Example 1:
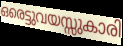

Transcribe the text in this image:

ഒരെട്ടുവയസ്സുകാരി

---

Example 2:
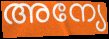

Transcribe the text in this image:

അന്യേ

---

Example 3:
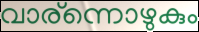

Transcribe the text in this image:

വാര്ന്നൊഴുകും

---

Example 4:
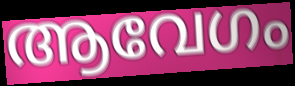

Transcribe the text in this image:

ആവേഗം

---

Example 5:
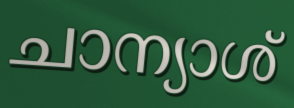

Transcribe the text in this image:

ചാന്യാശ്